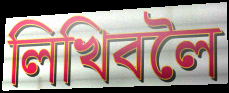
লিখিবলৈ